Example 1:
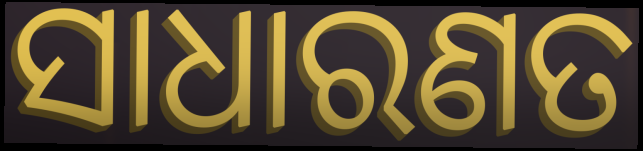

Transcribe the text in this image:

ସାଧାରଣତ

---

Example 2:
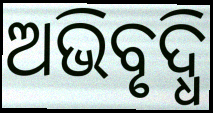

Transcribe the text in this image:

ଅଭିବୃଦ୍ଧି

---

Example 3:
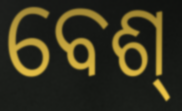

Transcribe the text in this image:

ବେଶ୍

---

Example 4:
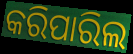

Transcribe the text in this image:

କରିପାରିଲ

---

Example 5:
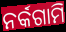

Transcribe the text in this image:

ନର୍କଗାମି